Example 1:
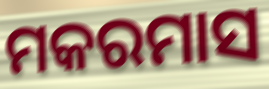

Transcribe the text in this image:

ମକରମାସ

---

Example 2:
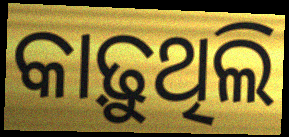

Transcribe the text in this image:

କାଢ଼ୁଥିଲି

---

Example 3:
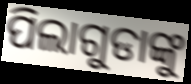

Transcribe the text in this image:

ପିଲାଗୁଡାଙ୍କୁ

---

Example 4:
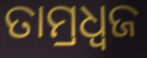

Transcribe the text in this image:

ତାମ୍ରଧ୍ୱଜ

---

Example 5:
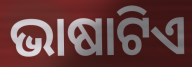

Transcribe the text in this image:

ଭାଷାଟିଏ